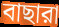
বাছারা